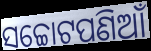
ସଚ୍ଚୋଟପଣିଆଁ